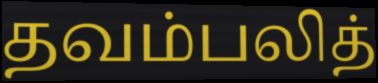
தவம்பலித்